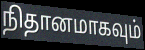
நிதானமாகவும்